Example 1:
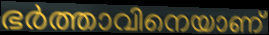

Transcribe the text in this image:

ഭർത്താവിനെയാണ്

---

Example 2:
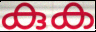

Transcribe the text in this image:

കുക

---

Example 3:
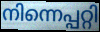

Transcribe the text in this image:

നിന്നെപ്പറ്റി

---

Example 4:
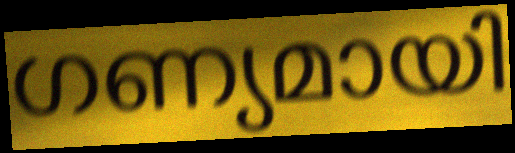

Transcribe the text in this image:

ഗണ്യമായി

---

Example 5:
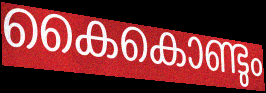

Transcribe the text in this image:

കൈകൊണ്ടും